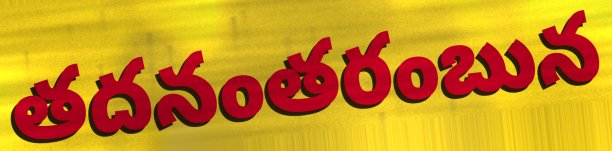
తదనంతరంబున